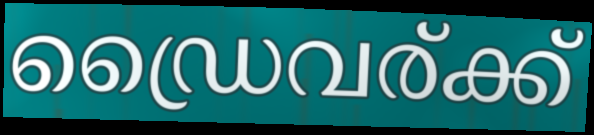
ഡ്രൈവര്ക്ക്